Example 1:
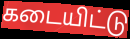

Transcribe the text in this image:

கடையிட்டு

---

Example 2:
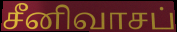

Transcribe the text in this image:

சீனிவாசப்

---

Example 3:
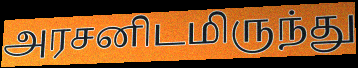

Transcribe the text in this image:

அரசனிடமிருந்து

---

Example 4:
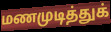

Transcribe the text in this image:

மணமுடித்துக்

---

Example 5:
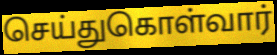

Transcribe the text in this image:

செய்துகொள்வார்